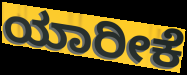
ಯಾರೀಕೆ